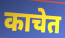
काचेत